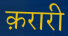
क़रारी